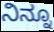
ನಿನ್ನೂ